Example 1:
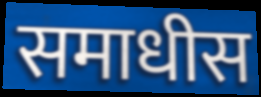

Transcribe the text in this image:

समाधीस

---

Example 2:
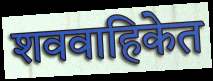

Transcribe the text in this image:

शववाहिकेत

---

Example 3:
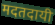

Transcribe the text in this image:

मदतदायी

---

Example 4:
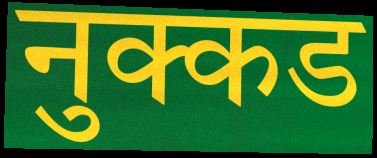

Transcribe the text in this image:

नुक्कड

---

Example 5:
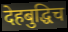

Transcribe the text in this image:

देहबुद्धिच